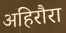
अहिरौरा